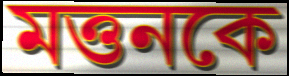
মত্তনকে